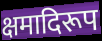
क्षमादिरूप